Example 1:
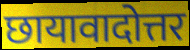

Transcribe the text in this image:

छायावादोत्तर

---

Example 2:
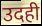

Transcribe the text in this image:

उदही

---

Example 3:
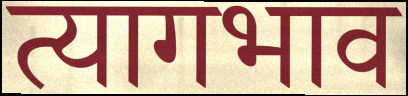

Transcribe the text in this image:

त्यागभाव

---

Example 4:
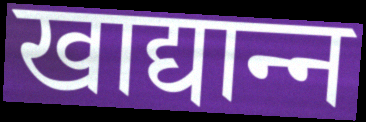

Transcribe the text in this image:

खाद्यान्‍न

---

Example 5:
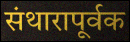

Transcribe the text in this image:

संथारापूर्वक